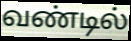
வண்டில்